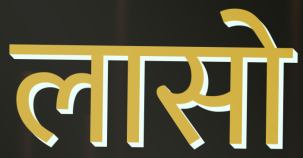
लासो